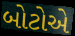
બોટોએ